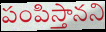
పంపిస్తానని